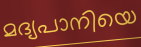
മദ്യപാനിയെ